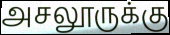
அசலூருக்கு